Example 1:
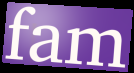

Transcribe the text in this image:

fam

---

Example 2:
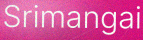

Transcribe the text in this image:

Srimangai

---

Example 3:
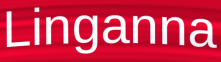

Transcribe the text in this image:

Linganna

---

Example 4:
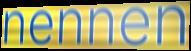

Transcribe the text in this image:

nennen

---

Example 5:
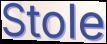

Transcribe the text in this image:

Stole